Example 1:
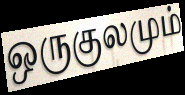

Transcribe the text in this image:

ஒருகுலமும்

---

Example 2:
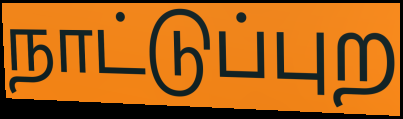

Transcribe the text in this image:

நாட்டுப்புற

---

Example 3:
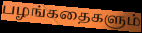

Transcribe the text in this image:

பழங்கதைகளும்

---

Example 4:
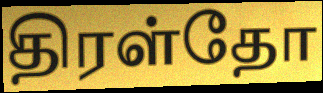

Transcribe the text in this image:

திரள்தோ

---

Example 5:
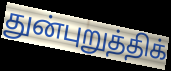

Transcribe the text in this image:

துன்புறுத்திக்